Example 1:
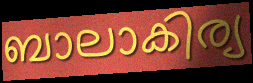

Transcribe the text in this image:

ബാലാകിര്യ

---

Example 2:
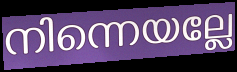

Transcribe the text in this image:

നിന്നെയല്ലേ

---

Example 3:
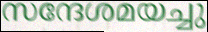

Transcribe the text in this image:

സന്ദേശമയച്ചു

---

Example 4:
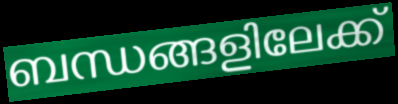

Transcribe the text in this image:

ബന്ധങ്ങളിലേക്ക്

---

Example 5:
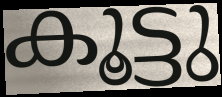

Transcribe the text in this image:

കൂട്ടു